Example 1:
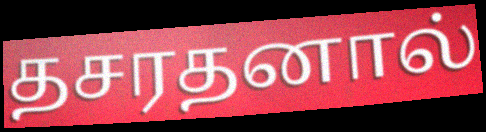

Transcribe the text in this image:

தசரதனால்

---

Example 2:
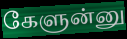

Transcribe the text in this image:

கேளுன்னு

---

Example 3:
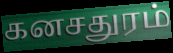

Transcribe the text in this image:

கனசதுரம்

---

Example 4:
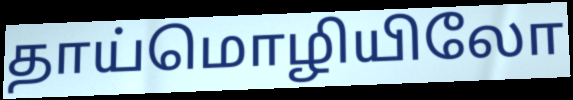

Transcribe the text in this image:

தாய்மொழியிலோ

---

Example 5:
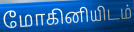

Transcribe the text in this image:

மோகினியிடம்